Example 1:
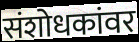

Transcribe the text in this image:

संशोधकांवर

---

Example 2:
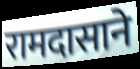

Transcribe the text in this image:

रामदासाने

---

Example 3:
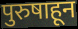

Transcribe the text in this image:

पुरुषाहून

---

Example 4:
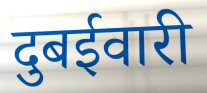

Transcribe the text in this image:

दुबईवारी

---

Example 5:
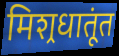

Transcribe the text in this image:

मिश्रधातूंत